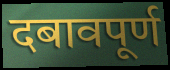
दबावपूर्ण